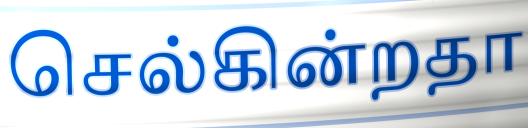
செல்கின்றதா